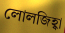
লোলজিহ্বা